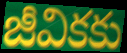
జీవికకు